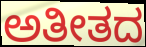
ಅತೀತದ